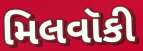
મિલવૉકી